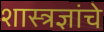
शास्त्रज्ञांचे